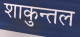
शाकुन्तल